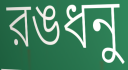
রঙধনু